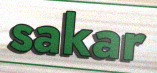
sakar